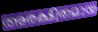
അരക്ഷിതമായ